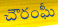
చౌరంఘీ